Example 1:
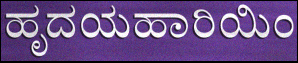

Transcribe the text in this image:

ಹೃದಯಹಾರಿಯಿಂ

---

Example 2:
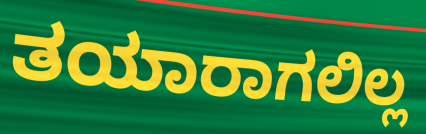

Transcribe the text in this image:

ತಯಾರಾಗಲಿಲ್ಲ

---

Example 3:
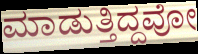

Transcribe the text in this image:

ಮಾಡುತ್ತಿದ್ದವೋ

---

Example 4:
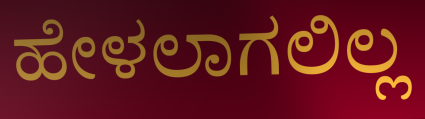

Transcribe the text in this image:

ಹೇಳಲಾಗಲಿಲ್ಲ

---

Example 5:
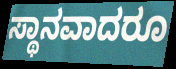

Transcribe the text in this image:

ಸ್ಥಾನವಾದರೂ